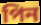
পিন